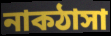
নাকঠাসা